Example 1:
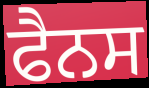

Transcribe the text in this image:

ਫੈਨਸ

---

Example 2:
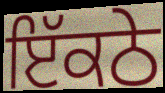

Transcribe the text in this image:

ਇੱਕਠੇ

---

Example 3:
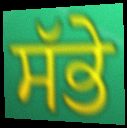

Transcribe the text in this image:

ਸੱਭੇ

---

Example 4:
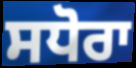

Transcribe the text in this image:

ਸਧੋਰਾ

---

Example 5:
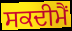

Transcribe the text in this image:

ਸਕਦੀਮੈਂ